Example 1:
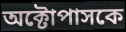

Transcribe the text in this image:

অক্টোপাসকে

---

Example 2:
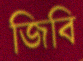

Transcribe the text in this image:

জিবি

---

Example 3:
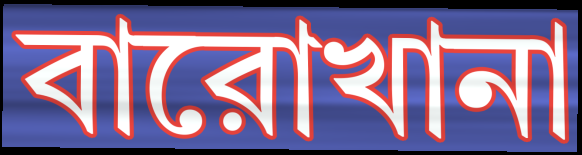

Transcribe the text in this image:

বারোখানা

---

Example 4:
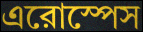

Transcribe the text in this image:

এরোস্পেস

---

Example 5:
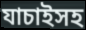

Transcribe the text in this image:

যাচাইসহ